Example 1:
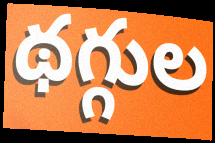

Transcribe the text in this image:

థగ్గుల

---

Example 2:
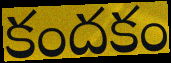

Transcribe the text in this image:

కందకం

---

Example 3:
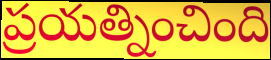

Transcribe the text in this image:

ప్రయత్నించింది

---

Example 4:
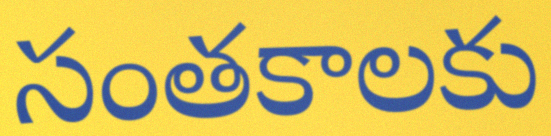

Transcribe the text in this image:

సంతకాలకు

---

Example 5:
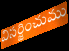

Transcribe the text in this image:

విసర్జించుము